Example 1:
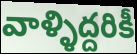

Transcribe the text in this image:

వాళ్ళిద్దరికీ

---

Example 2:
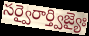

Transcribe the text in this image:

సర్వైరార్త్విజ్యైః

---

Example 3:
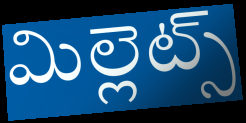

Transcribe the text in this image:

మిల్లెట్స్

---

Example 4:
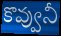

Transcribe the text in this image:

కొవ్వునీ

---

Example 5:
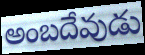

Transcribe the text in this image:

అంబదేవుడు